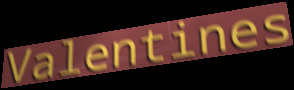
Valentines